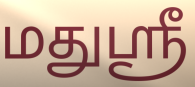
மதுஸ்ரீ